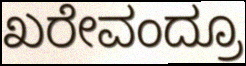
ಖರೇವಂದ್ರೂ